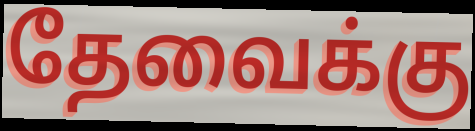
தேவைக்கு